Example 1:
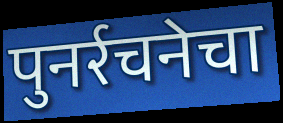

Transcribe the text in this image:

पुनर्रचनेचा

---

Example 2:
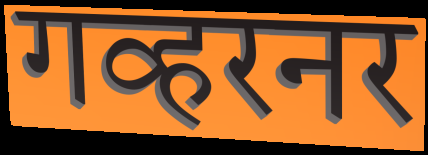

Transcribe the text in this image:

गव्हरनर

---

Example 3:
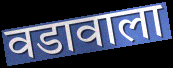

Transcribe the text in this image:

वडावाला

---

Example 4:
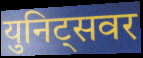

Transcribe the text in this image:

युनिट्सवर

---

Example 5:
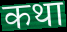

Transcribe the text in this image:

कथा